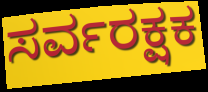
ಸರ್ವರಕ್ಷಕ